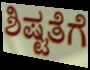
ಶಿಷ್ಟತೆಗೆ